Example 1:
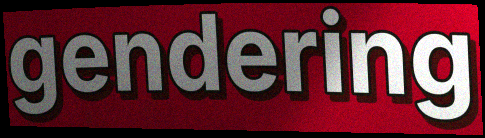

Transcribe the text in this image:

gendering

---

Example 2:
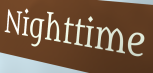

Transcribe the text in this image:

Nighttime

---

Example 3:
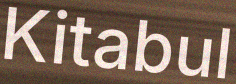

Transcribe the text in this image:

Kitabul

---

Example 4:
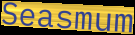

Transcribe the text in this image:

Seasmum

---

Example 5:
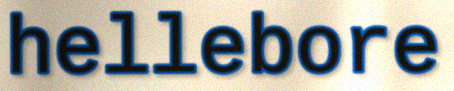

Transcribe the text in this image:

hellebore